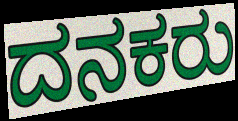
ದನಕರು